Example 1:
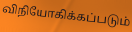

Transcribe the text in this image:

விநியோகிக்கப்படும்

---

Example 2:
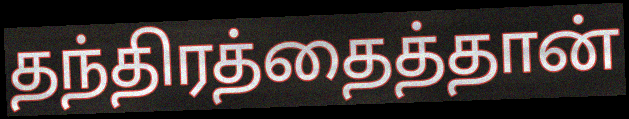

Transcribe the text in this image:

தந்திரத்தைத்தான்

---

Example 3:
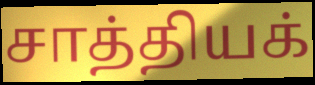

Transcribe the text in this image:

சாத்தியக்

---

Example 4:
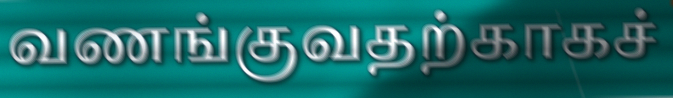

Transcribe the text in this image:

வணங்குவதற்காகச்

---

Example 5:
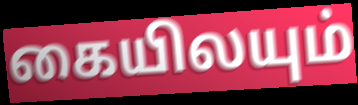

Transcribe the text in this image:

கையிலயும்